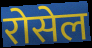
रोसेल